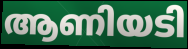
ആണിയടി